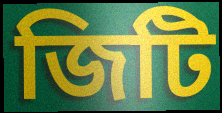
জিটি